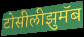
टोसीलीझुमॅब